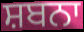
ਸ਼ਬਨਾ